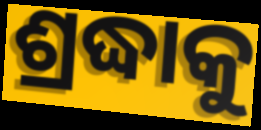
ଶ୍ରଦ୍ଧାକୁ